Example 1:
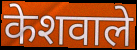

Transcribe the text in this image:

केशवाले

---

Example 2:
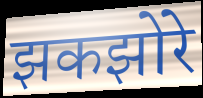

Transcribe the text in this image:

झकझोरे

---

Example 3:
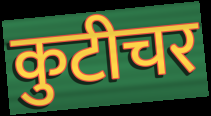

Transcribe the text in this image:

कुटीचर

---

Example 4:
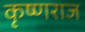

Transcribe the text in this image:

कृष्णराज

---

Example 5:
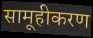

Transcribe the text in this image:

सामूहीकरण